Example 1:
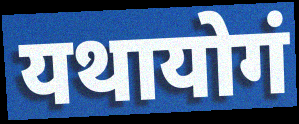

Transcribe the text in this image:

यथायोगं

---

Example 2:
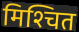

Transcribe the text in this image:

मिश्चित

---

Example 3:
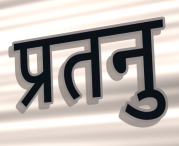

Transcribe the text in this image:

प्रतनु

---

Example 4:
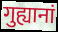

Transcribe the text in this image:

गुह्यानां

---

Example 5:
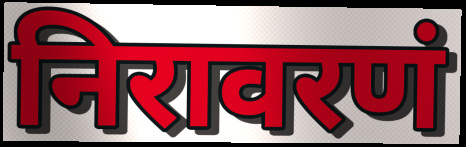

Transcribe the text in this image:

निरावरणं